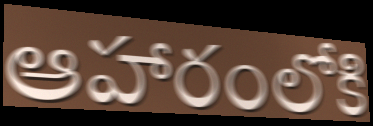
ఆహారంలోకి